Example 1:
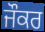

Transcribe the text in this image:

ਜੌਕਰ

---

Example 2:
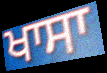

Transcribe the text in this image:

ਖਾਸਾ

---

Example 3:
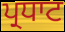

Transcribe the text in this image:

ਪ੍ਰਧਾਟ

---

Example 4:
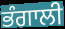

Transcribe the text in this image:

ਭੰਗਾਲੀ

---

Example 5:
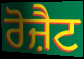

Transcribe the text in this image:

ਰੋਜ਼ੈਟ